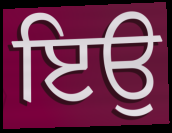
ਇਉ